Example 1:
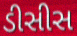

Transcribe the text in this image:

ડીસીસ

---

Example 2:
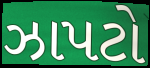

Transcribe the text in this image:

ઝાપટો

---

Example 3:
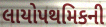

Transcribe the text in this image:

લાયોપથમિકની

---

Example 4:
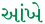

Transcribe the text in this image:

આંખે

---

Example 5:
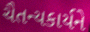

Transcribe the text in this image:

ચૈતન્યકાર્યને